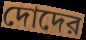
দোদের